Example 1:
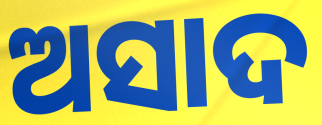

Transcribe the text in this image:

ଅସାଦ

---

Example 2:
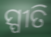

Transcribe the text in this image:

ସ୍ପୀତି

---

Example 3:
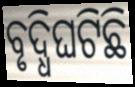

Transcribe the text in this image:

ବୃଦ୍ଧିଘଟିଛି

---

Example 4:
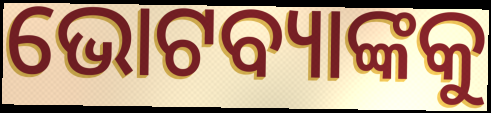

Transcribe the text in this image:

ଭୋଟବ୍ୟାଙ୍କକୁ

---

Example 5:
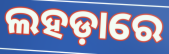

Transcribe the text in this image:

ଲହଡ଼ାରେ